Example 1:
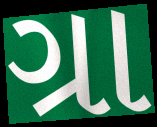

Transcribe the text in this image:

ગ્રા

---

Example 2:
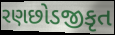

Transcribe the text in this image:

રણછોડજીકૃત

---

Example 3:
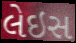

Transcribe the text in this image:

લેઇસ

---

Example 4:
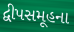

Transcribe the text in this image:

દ્વીપસમૂહના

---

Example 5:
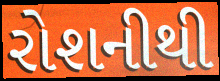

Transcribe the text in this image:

રોશનીથી